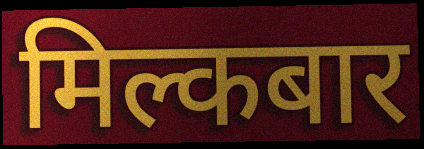
मिल्कबार